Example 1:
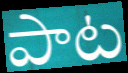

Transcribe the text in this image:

పాట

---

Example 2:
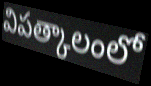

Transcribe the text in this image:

విపత్కాలంలో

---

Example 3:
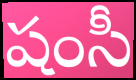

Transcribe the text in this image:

షంసీ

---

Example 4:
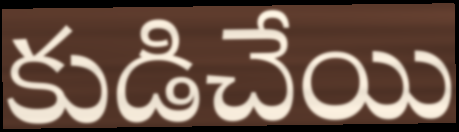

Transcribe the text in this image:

కుడిచేయి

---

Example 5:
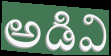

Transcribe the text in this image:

అడివి